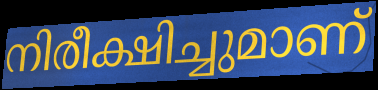
നിരീക്ഷിച്ചുമാണ്